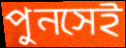
পুনসেই